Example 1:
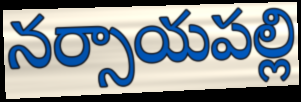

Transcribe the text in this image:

నర్సాయపల్లి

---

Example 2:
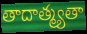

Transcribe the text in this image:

తాదాత్మ్యతా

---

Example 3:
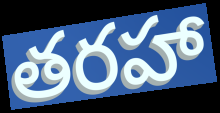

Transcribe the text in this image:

తరహా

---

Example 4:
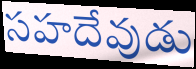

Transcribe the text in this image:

సహదేవుడు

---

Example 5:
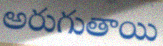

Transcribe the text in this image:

అరుగుతాయి